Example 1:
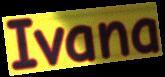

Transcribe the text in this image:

Ivana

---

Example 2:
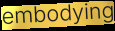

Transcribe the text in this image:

embodying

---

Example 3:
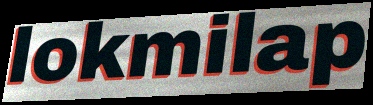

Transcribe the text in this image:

lokmilap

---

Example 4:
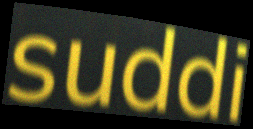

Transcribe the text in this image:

suddi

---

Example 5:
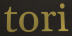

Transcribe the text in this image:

tori